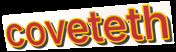
coveteth